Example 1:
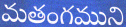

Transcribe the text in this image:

మతంగముని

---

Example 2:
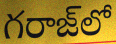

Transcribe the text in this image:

గరాజ్‌లో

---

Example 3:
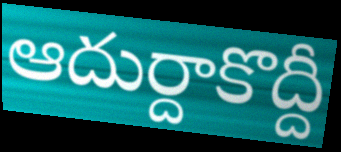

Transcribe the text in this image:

ఆదుర్దాకొద్దీ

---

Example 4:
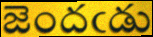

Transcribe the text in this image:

జెందఁడు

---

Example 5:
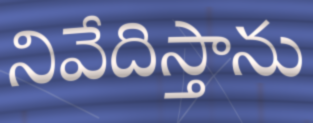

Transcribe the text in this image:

నివేదిస్తాను